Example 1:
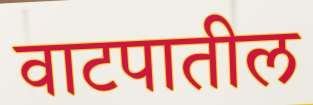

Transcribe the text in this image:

वाटपातील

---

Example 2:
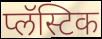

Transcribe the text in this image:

प्लॅस्टिक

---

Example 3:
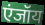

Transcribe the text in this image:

एंजॉय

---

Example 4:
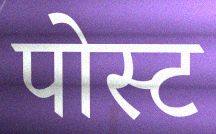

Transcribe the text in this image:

पोस्ट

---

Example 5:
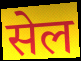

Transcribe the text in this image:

सेल